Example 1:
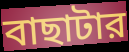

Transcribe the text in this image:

বাছাটার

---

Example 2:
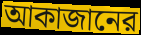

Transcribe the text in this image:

আকাজানের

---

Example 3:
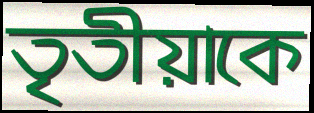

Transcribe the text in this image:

তৃতীয়াকে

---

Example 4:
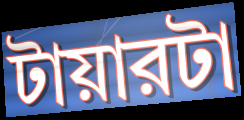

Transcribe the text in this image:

টায়ারটা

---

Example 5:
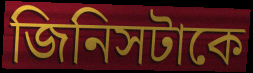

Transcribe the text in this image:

জিনিসটাকে